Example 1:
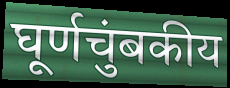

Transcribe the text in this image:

घूर्णचुंबकीय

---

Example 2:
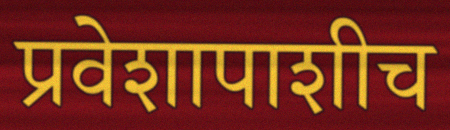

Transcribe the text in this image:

प्रवेशापाशीच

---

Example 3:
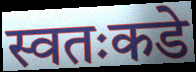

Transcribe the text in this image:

स्वतःकडे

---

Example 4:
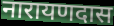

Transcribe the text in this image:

नारायणदास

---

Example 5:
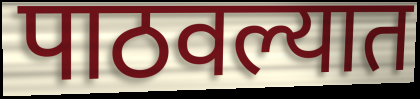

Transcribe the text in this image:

पाठवल्यात